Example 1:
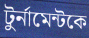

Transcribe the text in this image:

টুর্নামেন্টকে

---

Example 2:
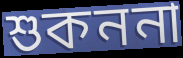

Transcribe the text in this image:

শুকননা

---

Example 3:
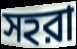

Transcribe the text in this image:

সহরা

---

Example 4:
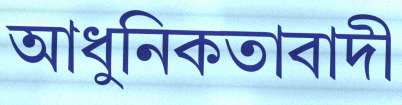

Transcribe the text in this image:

আধুনিকতাবাদী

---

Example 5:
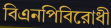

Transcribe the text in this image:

বিএনপিবিরোধী